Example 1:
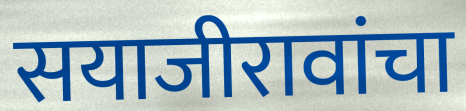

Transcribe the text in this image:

सयाजीरावांचा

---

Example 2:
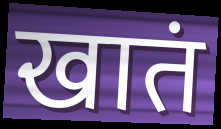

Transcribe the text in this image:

खातं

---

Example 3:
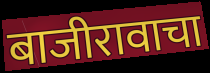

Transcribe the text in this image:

बाजीरावाचा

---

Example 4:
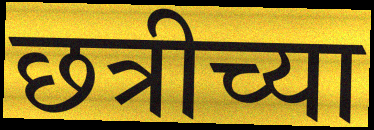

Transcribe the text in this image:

छत्रीच्या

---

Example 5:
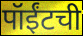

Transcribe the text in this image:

पॉईंटची